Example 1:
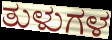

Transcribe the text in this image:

ತುಳುಗಳ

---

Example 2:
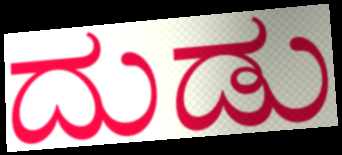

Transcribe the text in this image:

ದುಡು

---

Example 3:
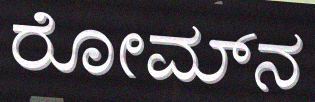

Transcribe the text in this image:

ರೋಮ್‍ನ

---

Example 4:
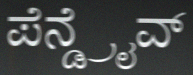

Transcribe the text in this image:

ಪೆನ್ಡ್ರೈವ್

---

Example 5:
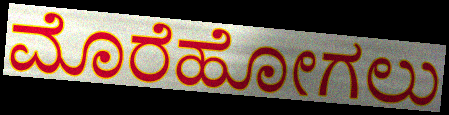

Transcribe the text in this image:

ಮೊರೆಹೋಗಲು